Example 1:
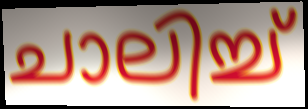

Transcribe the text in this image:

ചാലിച്ച്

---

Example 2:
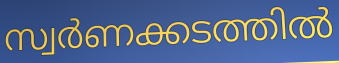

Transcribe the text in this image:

സ്വർണക്കടത്തിൽ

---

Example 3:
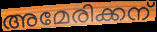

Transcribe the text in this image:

അമേരിക്കന്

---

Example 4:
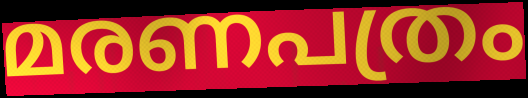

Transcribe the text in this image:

മരണപത്രം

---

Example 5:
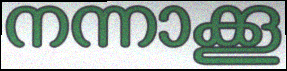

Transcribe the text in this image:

നന്നാക്കൂ